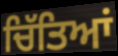
ਚਿੱਤਿਆਂ